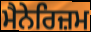
ਮੈਨੇਰਿਜ਼ਮ